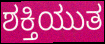
ಶಕ್ತಿಯುತ